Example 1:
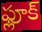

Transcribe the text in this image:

ఫ్లూక్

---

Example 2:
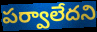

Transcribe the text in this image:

పర్వాలేదని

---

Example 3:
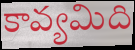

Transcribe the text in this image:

కావ్యమిది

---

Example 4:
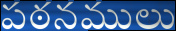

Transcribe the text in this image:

పఠనములు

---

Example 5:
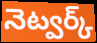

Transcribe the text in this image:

నెట్వర్క్